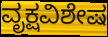
ವೃಕ್ಷವಿಶೇಷ